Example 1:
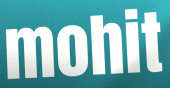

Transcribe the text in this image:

mohit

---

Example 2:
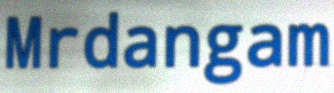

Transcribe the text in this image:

Mrdangam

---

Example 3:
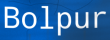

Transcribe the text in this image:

Bolpur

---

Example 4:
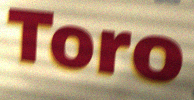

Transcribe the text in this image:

Toro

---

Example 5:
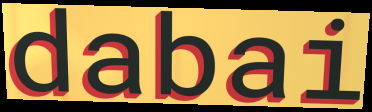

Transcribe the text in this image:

dabai